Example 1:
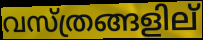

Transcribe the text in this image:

വസ്ത്രങ്ങളില്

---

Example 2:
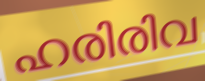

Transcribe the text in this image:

ഹരിരിവ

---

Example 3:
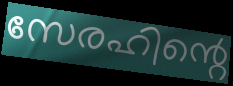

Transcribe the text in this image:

സേരഹിന്റെ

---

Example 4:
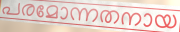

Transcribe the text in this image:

പരമോന്നതനായ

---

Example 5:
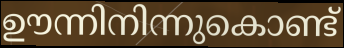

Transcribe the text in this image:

ഊന്നിനിന്നുകൊണ്ട്